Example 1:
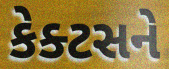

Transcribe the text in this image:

કેક્ટસને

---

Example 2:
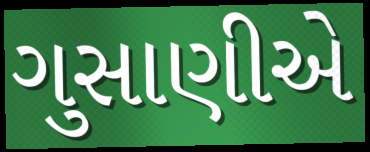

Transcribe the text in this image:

ગુસાણીએ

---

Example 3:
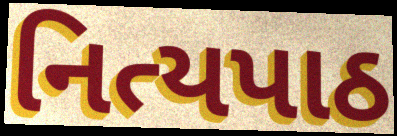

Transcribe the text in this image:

નિત્યપાઠ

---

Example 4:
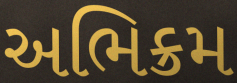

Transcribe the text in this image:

અભિક્રમ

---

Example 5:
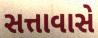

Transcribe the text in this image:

સત્તાવાસે